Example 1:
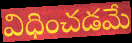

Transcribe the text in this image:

విధించడమే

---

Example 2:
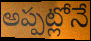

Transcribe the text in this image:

అప్పట్లోనే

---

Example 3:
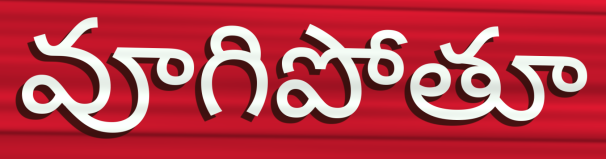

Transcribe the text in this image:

వూగిపోతూ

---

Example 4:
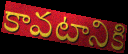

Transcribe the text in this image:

కావటానికి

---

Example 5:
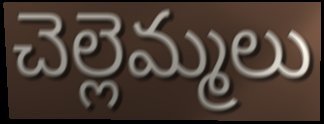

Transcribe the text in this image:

చెల్లెమ్మలు